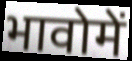
भावोमें